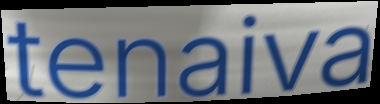
tenaiva